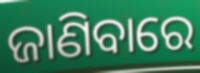
ଜାଣିବାରେ